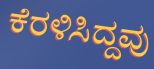
ಕೆರಳಿಸಿದ್ದವು